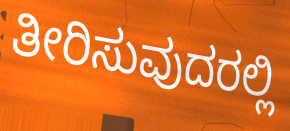
ತೀರಿಸುವುದರಲ್ಲಿ